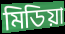
মিডিয়া